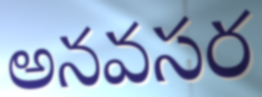
అనవసర